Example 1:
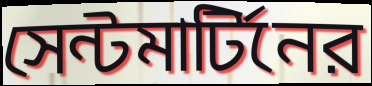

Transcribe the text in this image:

সেন্টমার্টিনের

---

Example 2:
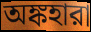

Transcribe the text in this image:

অঙ্কহারা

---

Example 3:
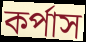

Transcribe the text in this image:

কর্পাস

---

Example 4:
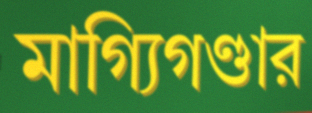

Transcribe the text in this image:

মাগ্যিগণ্ডার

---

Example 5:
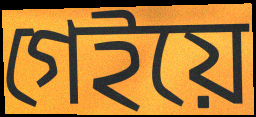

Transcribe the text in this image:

গেইয়ে